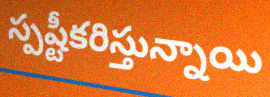
స్పష్టీకరిస్తున్నాయి